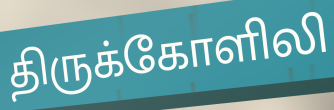
திருக்கோளிலி